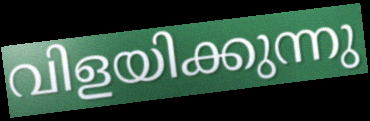
വിളയിക്കുന്നു